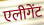
एलीगेंट